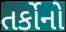
તર્કોનો